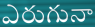
ఎరుగునా